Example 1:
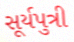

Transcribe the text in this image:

સૂર્યપુત્રી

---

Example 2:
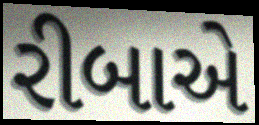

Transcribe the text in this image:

રીબાએ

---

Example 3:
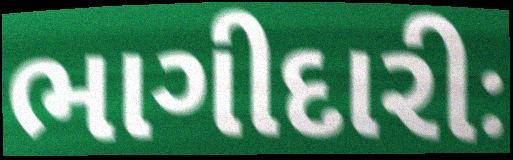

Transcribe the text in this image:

ભાગીદારીઃ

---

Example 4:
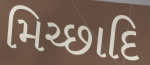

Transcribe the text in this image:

મિચ્છાદિ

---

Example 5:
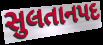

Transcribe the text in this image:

સુલતાનપદ